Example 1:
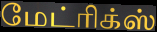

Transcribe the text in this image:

மேட்ரிக்ஸ்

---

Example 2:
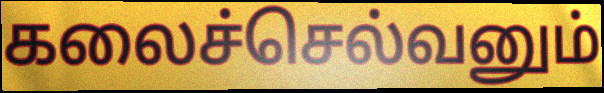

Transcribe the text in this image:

கலைச்செல்வனும்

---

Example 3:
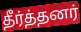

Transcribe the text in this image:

தீர்த்தனர்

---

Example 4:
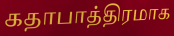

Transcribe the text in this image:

கதாபாத்திரமாக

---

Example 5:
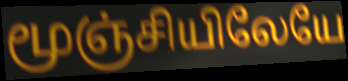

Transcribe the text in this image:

மூஞ்சியிலேயே